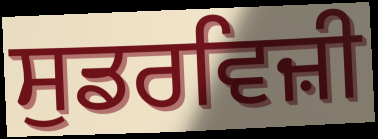
ਸੁਡਰਵਿਜ਼ੀ